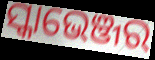
ସ୍କାଭେଞ୍ଜର